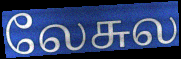
லேசுல